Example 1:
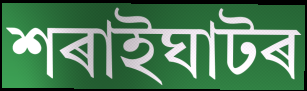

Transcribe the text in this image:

শৰাইঘাটৰ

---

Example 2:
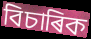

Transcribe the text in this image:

বিচাৰিক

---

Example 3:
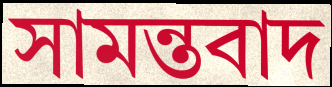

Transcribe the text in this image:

সামন্তবাদ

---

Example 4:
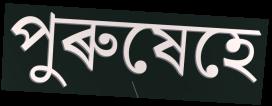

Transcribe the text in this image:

পুৰুষেহে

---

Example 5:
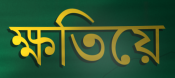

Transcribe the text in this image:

ক্ষতিয়ে